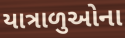
યાત્રાળુઓના